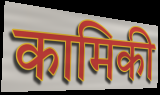
कामिकी